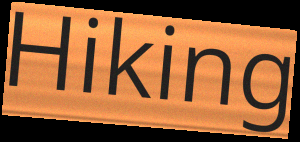
Hiking